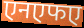
एनएफए